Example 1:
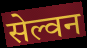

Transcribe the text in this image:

सेल्वन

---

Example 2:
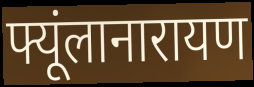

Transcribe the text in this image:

फ्यूंलानारायण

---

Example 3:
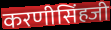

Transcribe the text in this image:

करणीसिंहजी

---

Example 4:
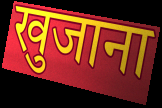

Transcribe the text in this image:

खुजाना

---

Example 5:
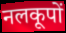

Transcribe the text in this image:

नलकूपों